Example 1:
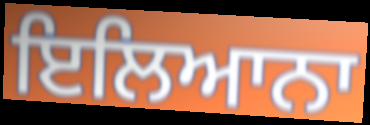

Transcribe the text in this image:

ਇਲਿਆਨਾ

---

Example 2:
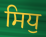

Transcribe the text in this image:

ਸਿਧੁ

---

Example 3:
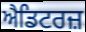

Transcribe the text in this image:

ਐਡਿਟਰਜ਼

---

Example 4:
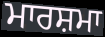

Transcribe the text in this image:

ਮਾਰਸ਼ਮਾ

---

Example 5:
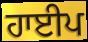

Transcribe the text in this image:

ਹਾਈਪ